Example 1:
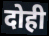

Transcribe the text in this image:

दोही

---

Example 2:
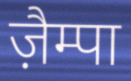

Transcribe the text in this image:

ज़ैम्पा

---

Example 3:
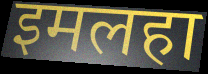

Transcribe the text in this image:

इमलहा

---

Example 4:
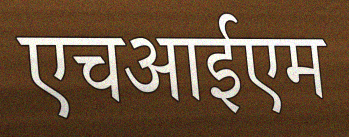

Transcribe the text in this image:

एचआईएम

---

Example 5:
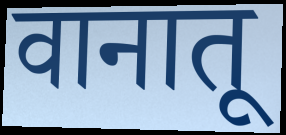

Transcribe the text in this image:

वानातू